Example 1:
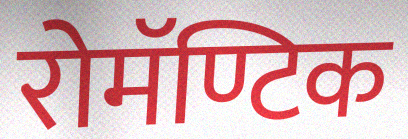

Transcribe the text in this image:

रोमॅण्टिक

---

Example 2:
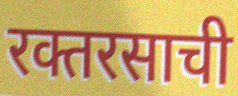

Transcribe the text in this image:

रक्तरसाची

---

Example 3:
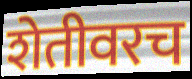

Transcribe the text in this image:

शेतीवरच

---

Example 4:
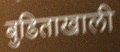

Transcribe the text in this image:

बुडिताखाली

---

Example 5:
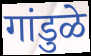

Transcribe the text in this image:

गांडुळे